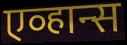
एव्हान्स